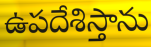
ఉపదేశిస్తాను